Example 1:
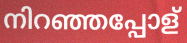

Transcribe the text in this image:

നിറഞ്ഞപ്പോള്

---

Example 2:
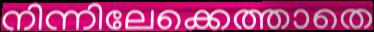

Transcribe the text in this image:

നിന്നിലേക്കെത്താതെ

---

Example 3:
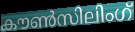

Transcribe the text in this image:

കൗൺസിലിംഗ്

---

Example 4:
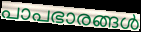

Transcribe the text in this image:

പാപഭാരങ്ങൾ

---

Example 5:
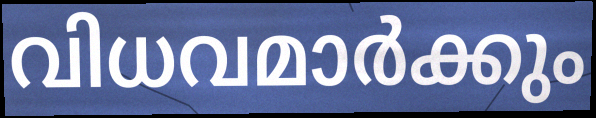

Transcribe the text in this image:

വിധവമാർക്കും